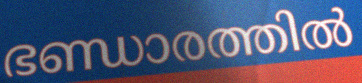
ഭണ്ഡാരത്തിൽ